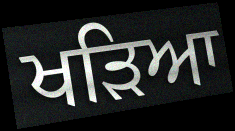
ਖੜਿਆ